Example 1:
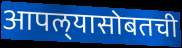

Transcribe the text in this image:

आपल्यासोबतची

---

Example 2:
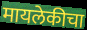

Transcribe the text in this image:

मायलेकीचा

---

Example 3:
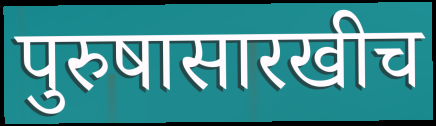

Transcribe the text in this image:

पुरुषासारखीच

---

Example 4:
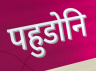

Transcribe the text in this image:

पहुडोनि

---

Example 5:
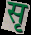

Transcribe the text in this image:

सृ